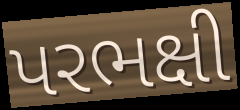
પરભક્ષી